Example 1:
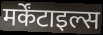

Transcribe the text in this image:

मर्केंटाइल्स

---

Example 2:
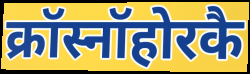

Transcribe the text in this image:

क्रॉस्नॉहोरकै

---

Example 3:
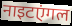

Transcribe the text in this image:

नाइटएंगल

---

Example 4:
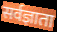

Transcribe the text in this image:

सर्वज्ञाता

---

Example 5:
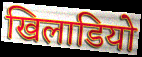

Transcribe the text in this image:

खिलाडियो